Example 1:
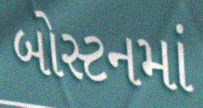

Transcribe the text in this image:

બોસ્ટનમાં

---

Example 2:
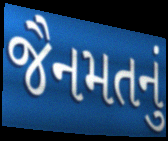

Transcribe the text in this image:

જૈનમતનું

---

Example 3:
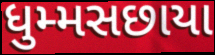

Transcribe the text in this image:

ધુમ્મસછાયા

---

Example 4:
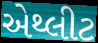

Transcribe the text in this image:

એથ્લીટ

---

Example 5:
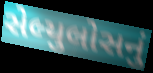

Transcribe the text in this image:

સેલ્યુલોસનું